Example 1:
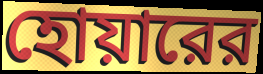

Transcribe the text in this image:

হোয়ারের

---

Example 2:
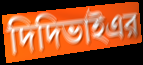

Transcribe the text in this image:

দিদিভাইএর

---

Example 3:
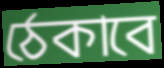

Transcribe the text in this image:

ঠেকাবে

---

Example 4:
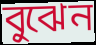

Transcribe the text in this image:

বুঝেন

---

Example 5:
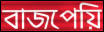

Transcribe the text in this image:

বাজপেয়ি